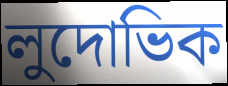
লুদোভিক